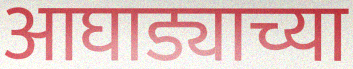
आघाड्याच्या